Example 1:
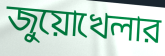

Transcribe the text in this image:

জুয়োখেলার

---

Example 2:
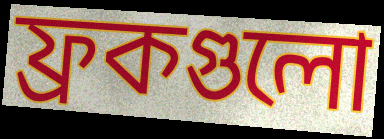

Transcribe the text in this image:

ফ্রকগুলো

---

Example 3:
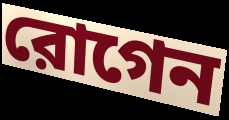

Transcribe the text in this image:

রোগেন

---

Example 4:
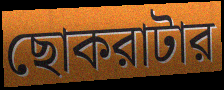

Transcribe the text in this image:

ছোকরাটার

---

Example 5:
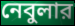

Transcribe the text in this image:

নেবুলার